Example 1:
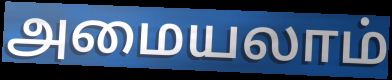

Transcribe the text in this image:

அமையலாம்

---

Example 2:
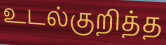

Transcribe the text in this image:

உடல்குறித்த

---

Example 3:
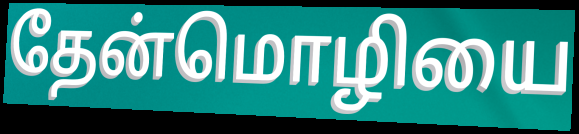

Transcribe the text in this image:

தேன்மொழியை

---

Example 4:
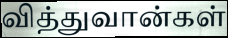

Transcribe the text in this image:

வித்துவான்கள்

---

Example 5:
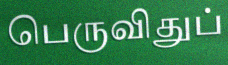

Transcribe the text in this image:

பெருவிதுப்